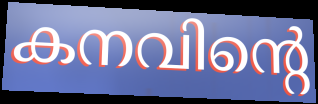
കനവിന്റെ